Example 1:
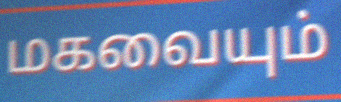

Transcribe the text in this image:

மகவையும்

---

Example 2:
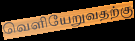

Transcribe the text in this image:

வெளியேறுவதற்கு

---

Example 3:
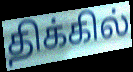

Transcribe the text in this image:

திக்கில்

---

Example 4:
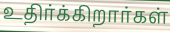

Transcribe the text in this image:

உதிர்க்கிறார்கள்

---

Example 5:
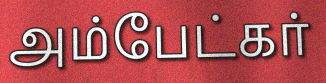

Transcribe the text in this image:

அம்பேட்கர்